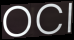
OCI